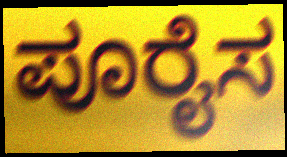
ಪೂರೈಸ